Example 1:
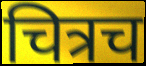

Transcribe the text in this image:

चित्रच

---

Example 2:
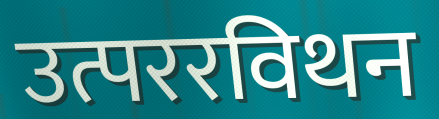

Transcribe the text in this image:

उत्पररविथन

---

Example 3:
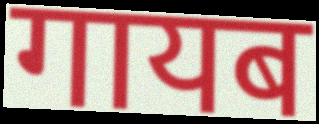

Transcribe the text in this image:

गायब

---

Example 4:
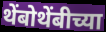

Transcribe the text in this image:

थेंबोथेंबीच्या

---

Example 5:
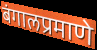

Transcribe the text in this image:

बंगालप्रमाणे